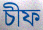
চীফ